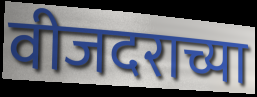
वीजदराच्या